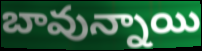
బావున్నాయి